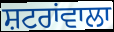
ਸ਼ਟਰਾਂਵਾਲਾ